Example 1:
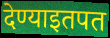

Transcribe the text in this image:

देण्याइतपत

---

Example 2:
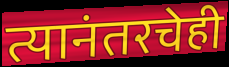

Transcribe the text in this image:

त्यानंतरचेही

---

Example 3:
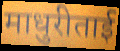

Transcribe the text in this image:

माधुरीताई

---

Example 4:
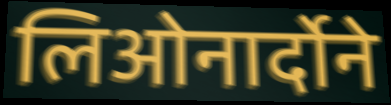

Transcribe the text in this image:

लिओनार्दोने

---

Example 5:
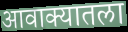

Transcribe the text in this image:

आवाक्यातला